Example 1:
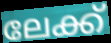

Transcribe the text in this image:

ലേക്ക്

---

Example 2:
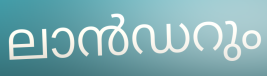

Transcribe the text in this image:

ലാൻഡറും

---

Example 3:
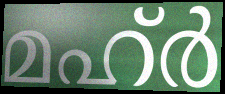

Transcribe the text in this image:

മഹ്ർ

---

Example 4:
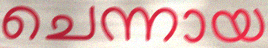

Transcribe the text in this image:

ചെന്നായ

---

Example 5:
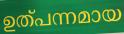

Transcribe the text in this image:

ഉത്പന്നമായ